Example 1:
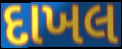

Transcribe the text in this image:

દાખલ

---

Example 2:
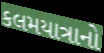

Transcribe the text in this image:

કલમયાત્રાનો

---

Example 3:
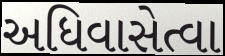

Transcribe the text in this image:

અધિવાસેત્વા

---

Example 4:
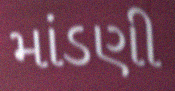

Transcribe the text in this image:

માંડણી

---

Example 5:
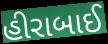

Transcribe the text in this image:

હીરાબાઈ